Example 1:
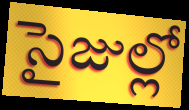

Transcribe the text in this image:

సైజుల్లో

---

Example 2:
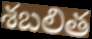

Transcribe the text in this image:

శబలిత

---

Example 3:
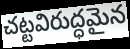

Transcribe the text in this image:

చట్టవిరుద్ధమైన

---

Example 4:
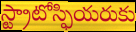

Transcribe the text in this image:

స్ట్రాటోస్ఫియరుకు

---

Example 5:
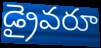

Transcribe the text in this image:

డ్రైవరూ